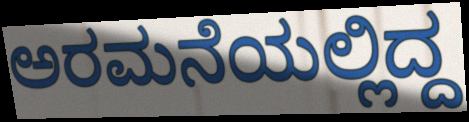
ಅರಮನೆಯಲ್ಲಿದ್ದ